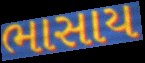
ભાસાય